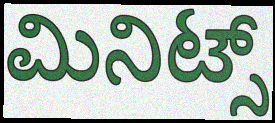
ಮಿನಿಟ್ಸ್